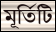
মূৰ্তিটি